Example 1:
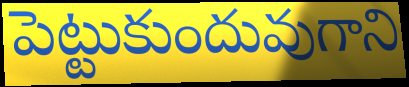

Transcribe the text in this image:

పెట్టుకుందువుగాని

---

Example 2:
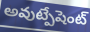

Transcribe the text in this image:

అవుట్పేషెంట్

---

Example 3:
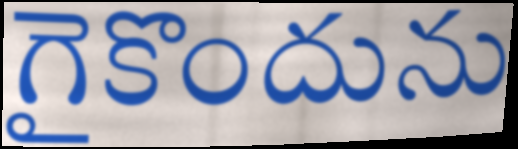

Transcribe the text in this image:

గైకొందును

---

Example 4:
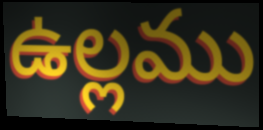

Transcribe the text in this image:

ఉల్లము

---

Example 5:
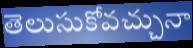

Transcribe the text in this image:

తెలుసుకోవచ్చునా